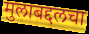
मुलाबद्दलचा